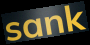
sank